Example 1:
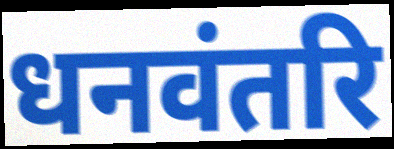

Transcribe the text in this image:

धनवंतरि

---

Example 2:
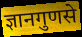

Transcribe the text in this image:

ज्ञानगुणसे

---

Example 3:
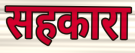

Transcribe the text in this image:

सहकारा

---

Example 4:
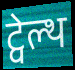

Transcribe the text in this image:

ट्वेल्थ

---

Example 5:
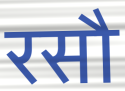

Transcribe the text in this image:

रसौ